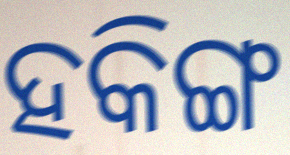
ହକିଙ୍ଗ